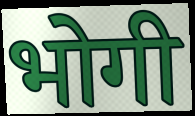
भोगी